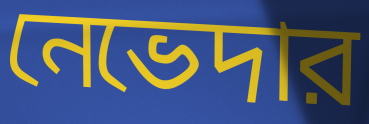
নেভেদার